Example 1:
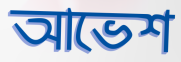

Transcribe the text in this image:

আভেশ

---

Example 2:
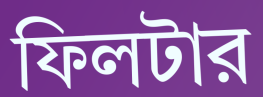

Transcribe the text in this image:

ফিলটার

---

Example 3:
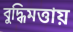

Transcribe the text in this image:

বুদ্ধিমত্তায়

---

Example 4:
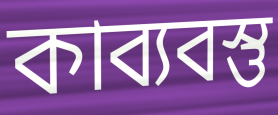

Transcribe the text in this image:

কাব্যবস্তু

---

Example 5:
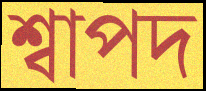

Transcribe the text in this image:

শ্বাপদ